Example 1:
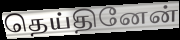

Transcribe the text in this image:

தெய்தினேன்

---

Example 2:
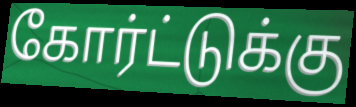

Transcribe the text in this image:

கோர்ட்டுக்கு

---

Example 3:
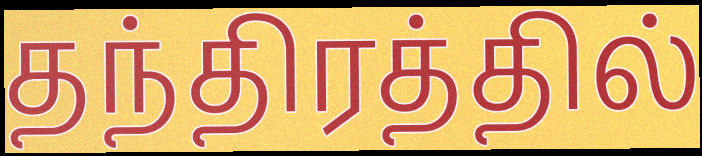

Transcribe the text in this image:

தந்திரத்தில்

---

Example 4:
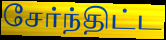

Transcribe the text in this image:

சேர்ந்திட்ட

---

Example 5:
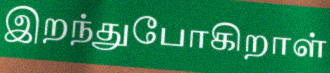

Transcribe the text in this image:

இறந்துபோகிறாள்